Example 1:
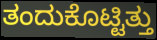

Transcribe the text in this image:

ತಂದುಕೊಟ್ಟಿತ್ತು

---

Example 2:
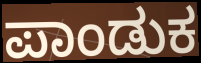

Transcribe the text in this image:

ಪಾಂಡುಕ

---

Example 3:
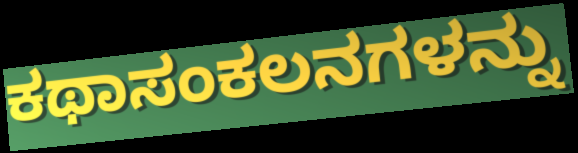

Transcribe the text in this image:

ಕಥಾಸಂಕಲನಗಳನ್ನು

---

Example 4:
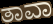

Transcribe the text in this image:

ತಾವಾ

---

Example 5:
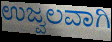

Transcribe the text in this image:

ಉಜ್ವಲವಾಗಿ